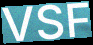
VSF